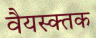
वैयस्क्तक